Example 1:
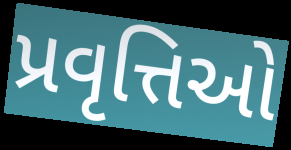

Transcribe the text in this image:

પ્રવૃત્તિઓ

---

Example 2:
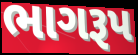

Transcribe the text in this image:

ભાગરૂપ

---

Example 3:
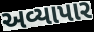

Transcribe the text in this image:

અવ્યાપાર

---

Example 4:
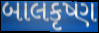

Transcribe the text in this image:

બાલકૃષ્ણ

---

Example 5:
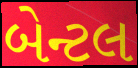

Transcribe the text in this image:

બેન્ટલ